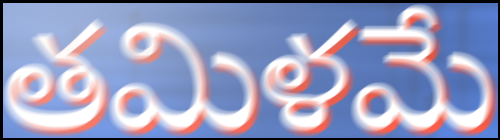
తమిళమే